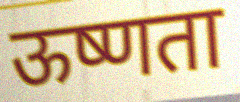
ऊष्णता